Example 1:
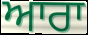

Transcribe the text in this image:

ਆਰਾ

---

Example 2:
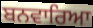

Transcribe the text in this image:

ਬਨਵਾਰਿਆ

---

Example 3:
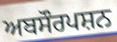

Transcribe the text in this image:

ਅਬਸੌਰਪਸ਼ਨ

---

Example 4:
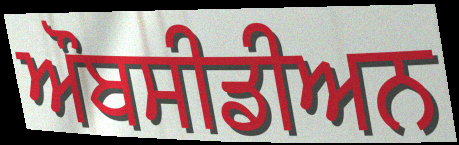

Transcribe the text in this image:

ਔਬਸੀਡੀਅਨ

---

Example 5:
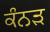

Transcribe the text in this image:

ਕੰਨਡ਼